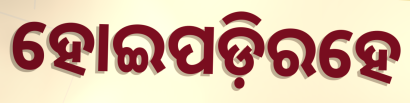
ହୋଇପଡ଼ିରହେ